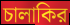
চালাকির